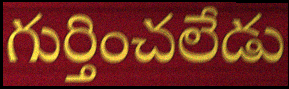
గుర్తించలేడు